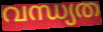
വന്ധ്യത